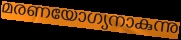
മരണയോഗ്യനാകുന്നു